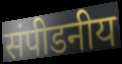
संपीडनीय